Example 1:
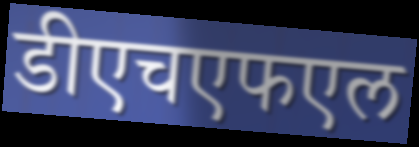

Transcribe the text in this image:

डीएचएफएल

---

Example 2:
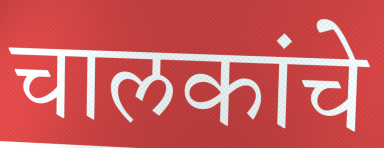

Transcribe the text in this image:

चालकांचे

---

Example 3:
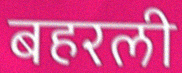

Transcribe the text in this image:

बहरली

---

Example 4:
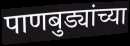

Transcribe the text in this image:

पाणबुड्यांच्या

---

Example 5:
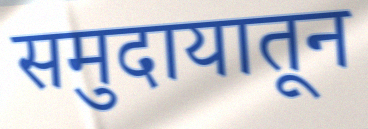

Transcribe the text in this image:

समुदायातून